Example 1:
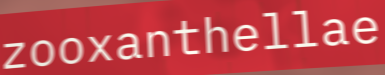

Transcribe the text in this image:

zooxanthellae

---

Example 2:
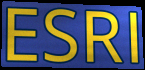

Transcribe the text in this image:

ESRI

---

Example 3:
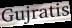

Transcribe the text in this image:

Gujratis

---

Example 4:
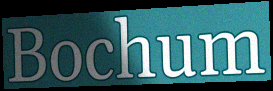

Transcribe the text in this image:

Bochum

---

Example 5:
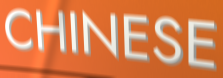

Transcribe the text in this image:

CHINESE